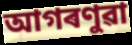
আগৰণুৱা